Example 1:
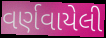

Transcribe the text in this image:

વર્ણવાયેલી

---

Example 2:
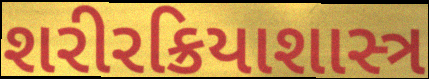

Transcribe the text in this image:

શરીરક્રિયાશાસ્ત્ર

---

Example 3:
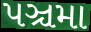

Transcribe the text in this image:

પઞ્ચમા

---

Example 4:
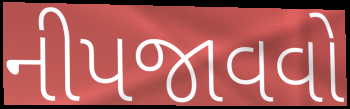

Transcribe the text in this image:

નીપજાવવો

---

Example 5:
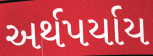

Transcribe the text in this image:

અર્થપર્યાય